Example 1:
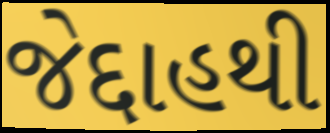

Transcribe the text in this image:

જેદ્દાહથી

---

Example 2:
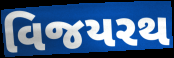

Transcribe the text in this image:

વિજયરથ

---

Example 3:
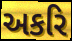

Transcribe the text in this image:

અકરિ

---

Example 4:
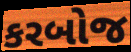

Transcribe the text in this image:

કરબોજ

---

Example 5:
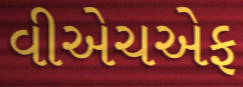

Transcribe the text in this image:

વીએચએફ